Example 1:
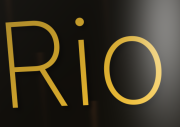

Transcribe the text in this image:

Rio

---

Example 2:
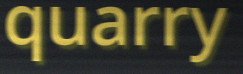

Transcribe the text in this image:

quarry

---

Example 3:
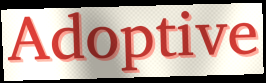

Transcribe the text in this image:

Adoptive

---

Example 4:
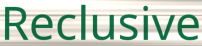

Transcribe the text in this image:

Reclusive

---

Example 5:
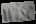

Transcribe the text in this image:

wise